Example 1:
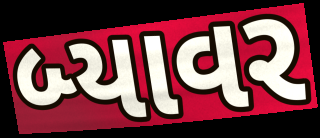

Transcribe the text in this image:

બ્યાવર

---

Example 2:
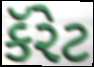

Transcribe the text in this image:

કૅરેટ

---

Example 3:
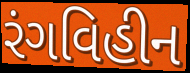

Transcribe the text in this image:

રંગવિહીન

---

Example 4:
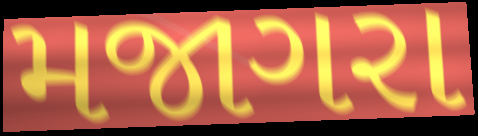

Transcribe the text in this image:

મજાગરા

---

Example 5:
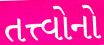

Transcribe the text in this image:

તત્ત્વોનો